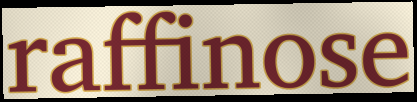
raffinose